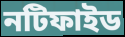
নটিফাইড